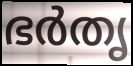
ഭർതൃ